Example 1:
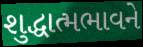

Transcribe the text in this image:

શુદ્ધાત્મભાવને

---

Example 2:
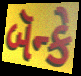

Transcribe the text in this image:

બૅન્કે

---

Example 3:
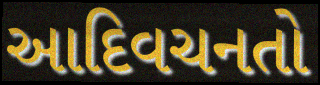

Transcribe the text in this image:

આદિવચનતો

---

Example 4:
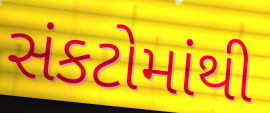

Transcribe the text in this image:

સંકટોમાંથી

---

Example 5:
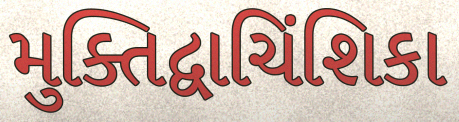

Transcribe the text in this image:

મુક્તિદ્વાચિંશિકા